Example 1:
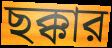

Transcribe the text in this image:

ছক্কার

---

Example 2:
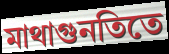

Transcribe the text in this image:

মাথাগুনতিতে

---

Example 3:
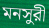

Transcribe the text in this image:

মনসুরী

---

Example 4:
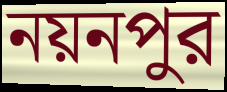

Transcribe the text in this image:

নয়নপুর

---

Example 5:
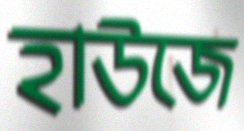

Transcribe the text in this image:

হাউজে